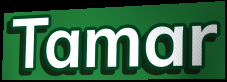
Tamar